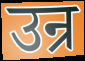
उन्र